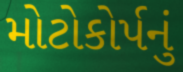
મોટોકોર્પનું